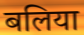
बलिया